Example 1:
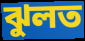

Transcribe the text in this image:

ঝুলত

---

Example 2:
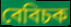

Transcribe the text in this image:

বেবিচক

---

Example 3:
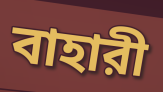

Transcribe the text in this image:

বাহারী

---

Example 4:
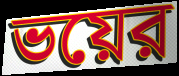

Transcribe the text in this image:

ভয়ের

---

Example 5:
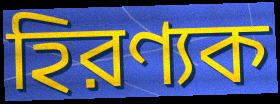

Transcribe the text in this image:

হিরণ্যক